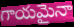
గాయమైనా